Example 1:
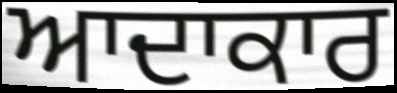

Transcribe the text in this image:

ਆਦਾਕਾਰ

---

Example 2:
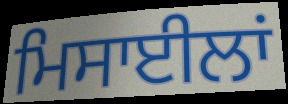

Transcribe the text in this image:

ਮਿਸਾਈਲਾਂ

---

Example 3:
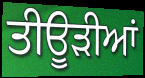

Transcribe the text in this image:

ਤੀਊੜੀਆਂ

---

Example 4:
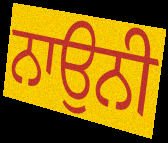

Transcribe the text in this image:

ਨਾਉਨੀ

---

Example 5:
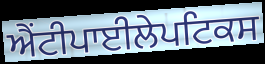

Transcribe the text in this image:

ਐਂਟੀਪਾਈਲੇਪਟਿਕਸ